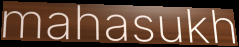
mahasukh